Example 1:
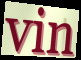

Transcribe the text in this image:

vin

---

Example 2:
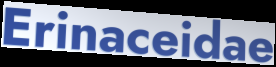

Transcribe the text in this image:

Erinaceidae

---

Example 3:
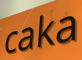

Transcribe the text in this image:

caka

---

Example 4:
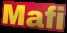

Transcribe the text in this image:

Mafi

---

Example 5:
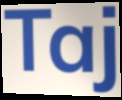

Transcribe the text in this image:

Taj